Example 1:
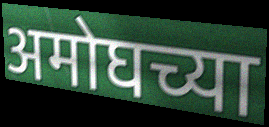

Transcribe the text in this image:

अमोघच्या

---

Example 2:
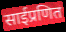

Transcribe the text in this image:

साईप्रणित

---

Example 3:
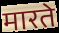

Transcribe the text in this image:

मारते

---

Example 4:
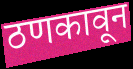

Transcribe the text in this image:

ठणकावून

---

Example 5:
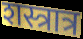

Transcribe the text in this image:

शस्त्रात्र